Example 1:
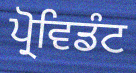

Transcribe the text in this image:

ਪ੍ਰੋਵਿਡੰਟ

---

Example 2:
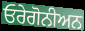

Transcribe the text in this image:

ਓਰੇਗੋਨੀਅਨ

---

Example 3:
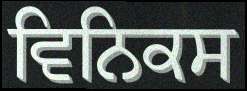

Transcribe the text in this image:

ਵਿਨਿਕਸ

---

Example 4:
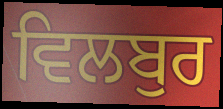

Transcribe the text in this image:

ਵਿਲਬੁਰ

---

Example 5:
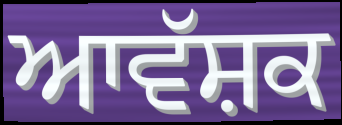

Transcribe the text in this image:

ਆਵੱਸ਼ਕ